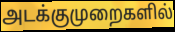
அடக்குமுறைகளில்